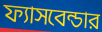
ফ্যাসবেন্ডার